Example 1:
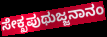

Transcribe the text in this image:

ಸೇಕ್ಖಪುಥುಜ್ಜನಾನಂ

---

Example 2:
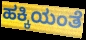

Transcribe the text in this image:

ಹಕ್ಕಿಯಂತೆ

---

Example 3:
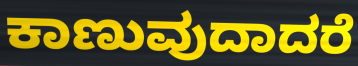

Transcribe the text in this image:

ಕಾಣುವುದಾದರೆ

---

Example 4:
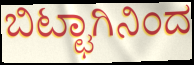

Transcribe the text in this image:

ಬಿಟ್ಟಾಗಿನಿಂದ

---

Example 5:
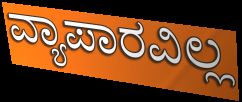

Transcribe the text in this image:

ವ್ಯಾಪಾರವಿಲ್ಲ